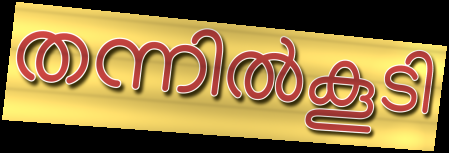
തന്നിൽകൂടി